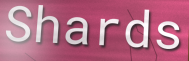
Shards